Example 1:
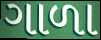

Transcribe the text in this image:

ગાળા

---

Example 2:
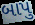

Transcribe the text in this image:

બાપુ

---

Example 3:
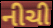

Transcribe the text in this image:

નીચી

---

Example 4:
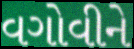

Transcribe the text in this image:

વગોવીને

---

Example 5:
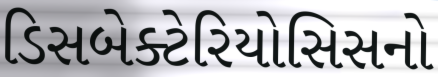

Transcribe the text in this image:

ડિસબેક્ટેરિયોસિસનો